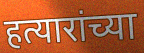
हत्यारांच्या